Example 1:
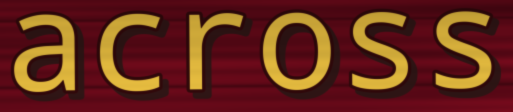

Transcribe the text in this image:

across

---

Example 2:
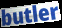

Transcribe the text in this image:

butler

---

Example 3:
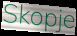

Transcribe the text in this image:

Skopje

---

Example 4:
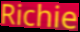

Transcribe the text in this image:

Richie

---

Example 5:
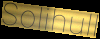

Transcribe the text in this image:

Solihull